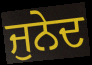
ਜੁਨੇਦ